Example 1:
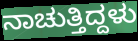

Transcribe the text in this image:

ನಾಚುತ್ತಿದ್ದಳು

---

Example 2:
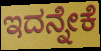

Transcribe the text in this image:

ಇದನ್ನೇಕೆ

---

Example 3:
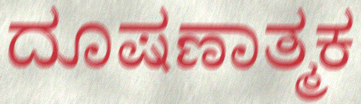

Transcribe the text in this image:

ದೂಷಣಾತ್ಮಕ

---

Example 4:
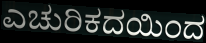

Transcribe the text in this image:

ಎಚುರಿಕದಯಿಂದ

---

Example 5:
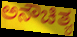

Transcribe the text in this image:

ಅನೌಚಿತ್ಯ